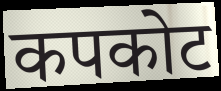
कपकोट